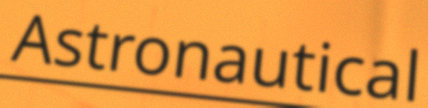
Astronautical